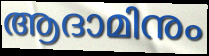
ആദാമിനും